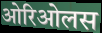
ओरिओलस